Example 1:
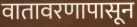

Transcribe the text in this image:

वातावरणापासून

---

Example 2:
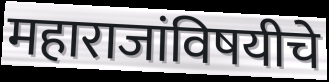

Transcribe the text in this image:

महाराजांविषयीचे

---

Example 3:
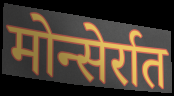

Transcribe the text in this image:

मोन्सेर्रात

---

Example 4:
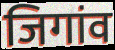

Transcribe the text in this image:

जिगांव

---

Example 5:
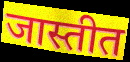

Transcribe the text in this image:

जास्तीत